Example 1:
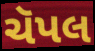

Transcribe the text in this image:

ચૅપલ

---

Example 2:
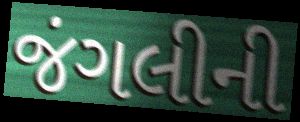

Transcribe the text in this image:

જંગલીની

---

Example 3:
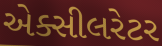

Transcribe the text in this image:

એક્સીલરેટર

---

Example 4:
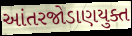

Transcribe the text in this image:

આંતરજોડાણયુક્ત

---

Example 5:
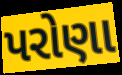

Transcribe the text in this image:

પરોણા